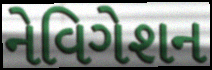
નેવિગેશન